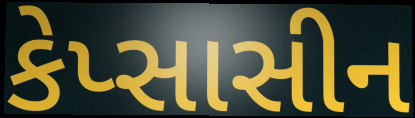
કેપ્સાસીન